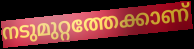
നടുമുറ്റത്തേക്കാണ്